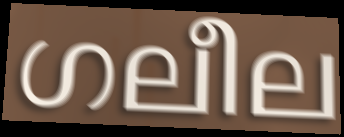
ഗലീല